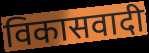
विकासवादी